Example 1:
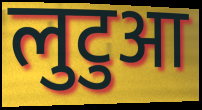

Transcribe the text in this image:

लुटुआ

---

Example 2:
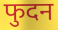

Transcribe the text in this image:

फुदन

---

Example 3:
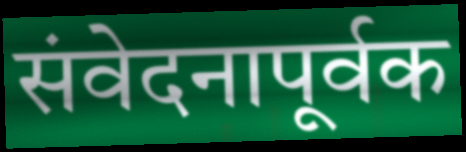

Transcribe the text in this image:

संवेदनापूर्वक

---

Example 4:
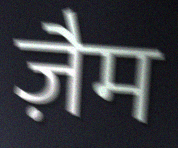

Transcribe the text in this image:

ज़ैम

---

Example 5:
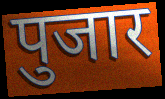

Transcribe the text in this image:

पुजार